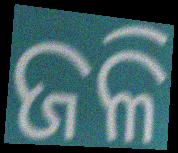
ଜଳି